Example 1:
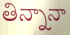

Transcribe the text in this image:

తిన్నానా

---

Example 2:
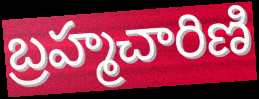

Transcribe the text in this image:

బ్రహ్మచారిణి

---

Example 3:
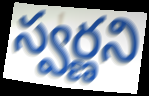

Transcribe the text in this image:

స్వర్ణని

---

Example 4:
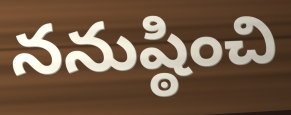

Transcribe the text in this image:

ననుష్ఠించి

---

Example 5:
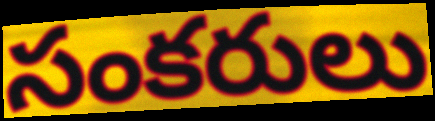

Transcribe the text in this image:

సంకరులు